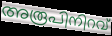
അരൂപിനിറവ്